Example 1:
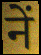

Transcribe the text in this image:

नें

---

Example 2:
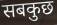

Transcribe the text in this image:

सबकुछ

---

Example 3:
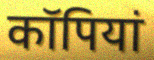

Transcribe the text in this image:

कॉपियां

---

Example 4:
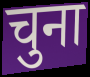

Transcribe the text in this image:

चुना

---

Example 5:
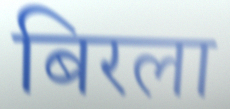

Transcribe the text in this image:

बिरला